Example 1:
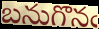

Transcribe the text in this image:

బనుగొనఁ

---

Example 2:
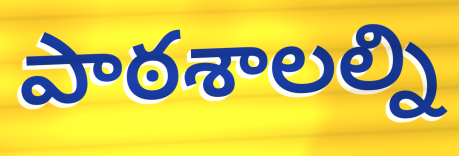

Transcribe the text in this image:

పాఠశాలల్ని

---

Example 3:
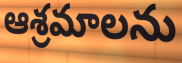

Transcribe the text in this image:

ఆశ్రమాలను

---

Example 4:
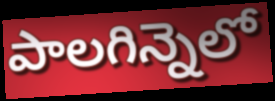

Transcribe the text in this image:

పాలగిన్నెలో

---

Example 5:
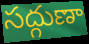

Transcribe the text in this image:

సద్గుణా